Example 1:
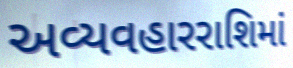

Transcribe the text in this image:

અવ્યવહારરાશિમાં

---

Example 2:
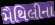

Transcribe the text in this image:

મૈથિલીના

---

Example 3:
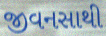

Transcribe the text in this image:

જીવનસાથી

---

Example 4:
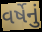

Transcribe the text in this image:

વર્ષેનું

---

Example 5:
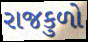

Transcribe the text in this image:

રાજકુળો